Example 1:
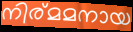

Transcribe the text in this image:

നിര്മമനായ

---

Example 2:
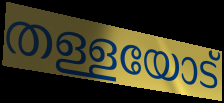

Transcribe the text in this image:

തള്ളയോട്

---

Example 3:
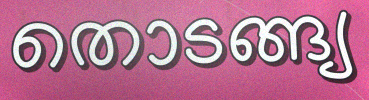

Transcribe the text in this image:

തൊടങ്ങ്യ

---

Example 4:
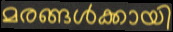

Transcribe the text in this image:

മരങ്ങൾക്കായി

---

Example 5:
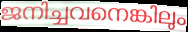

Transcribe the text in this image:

ജനിച്ചവനെങ്കിലും